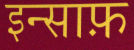
इन्साफ़